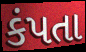
કંપતા